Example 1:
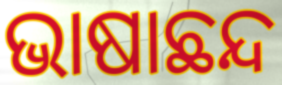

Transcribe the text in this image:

ଭାଷାଛନ୍ଦ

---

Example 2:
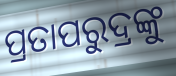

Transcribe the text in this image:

ପ୍ରତାପରୁଦ୍ରଙ୍କୁ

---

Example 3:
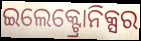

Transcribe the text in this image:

ଇଲେକ୍ଟ୍ରୋନିକ୍ସର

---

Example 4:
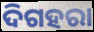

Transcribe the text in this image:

ଦିଗହରା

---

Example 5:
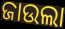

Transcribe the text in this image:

ଜାଉଲା